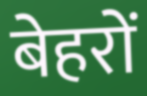
बेहरों